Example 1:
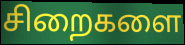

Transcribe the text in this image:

சிறைகளை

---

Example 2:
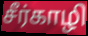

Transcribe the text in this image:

சீர்காழி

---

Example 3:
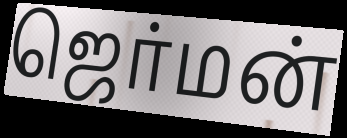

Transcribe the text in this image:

ஜெர்மன்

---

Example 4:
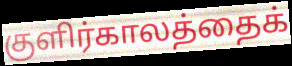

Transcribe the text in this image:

குளிர்காலத்தைக்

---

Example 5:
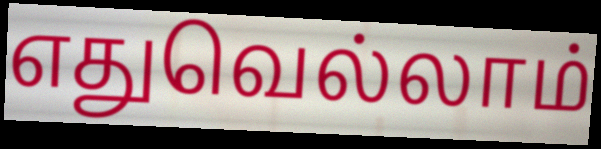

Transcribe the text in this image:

எதுவெல்லாம்